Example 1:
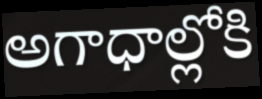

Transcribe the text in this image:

అగాధాల్లోకి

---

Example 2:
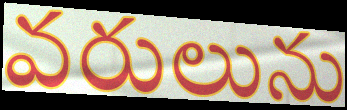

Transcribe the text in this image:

వరులును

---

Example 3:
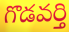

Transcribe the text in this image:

గొడవర్తి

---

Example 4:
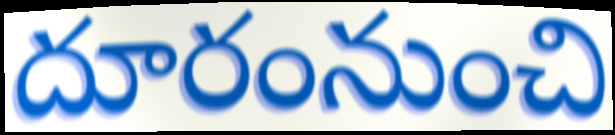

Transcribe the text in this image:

దూరంనుంచి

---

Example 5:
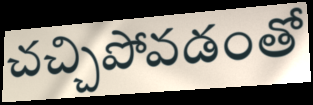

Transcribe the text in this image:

చచ్చిపోవడంతో